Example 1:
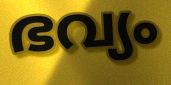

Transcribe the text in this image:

ഭവ്യം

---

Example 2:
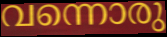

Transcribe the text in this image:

വന്നൊരു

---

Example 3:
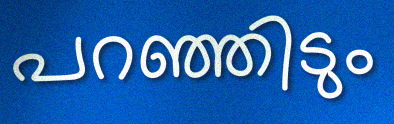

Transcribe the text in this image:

പറഞ്ഞിടും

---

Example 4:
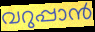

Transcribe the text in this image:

വറുപ്പാൻ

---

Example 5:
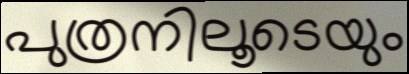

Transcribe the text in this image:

പുത്രനിലൂടെയും